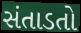
સંતાડતો